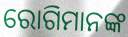
ରୋଗିମାନଙ୍କ